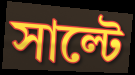
সাল্টে